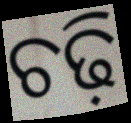
ଚଢ଼ି